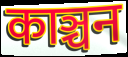
काञ्चन